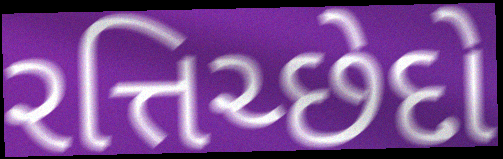
રત્તિચ્છેદો